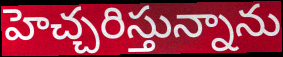
హెచ్చరిస్తున్నాను